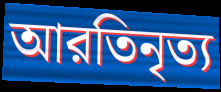
আরতিনৃত্য